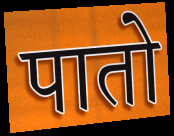
पातो